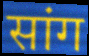
सांग